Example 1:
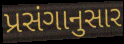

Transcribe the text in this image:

પ્રસંગાનુસાર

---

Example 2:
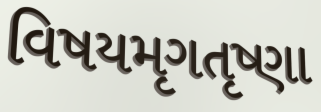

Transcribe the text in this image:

વિષયમૃગતૃષ્ણા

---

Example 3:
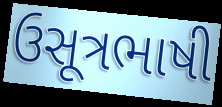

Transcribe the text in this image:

ઉસૂત્રભાષી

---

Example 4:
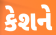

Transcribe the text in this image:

કેશને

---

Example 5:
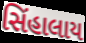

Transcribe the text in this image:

સિંહાલાય